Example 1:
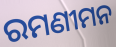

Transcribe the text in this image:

ରମଣୀମନ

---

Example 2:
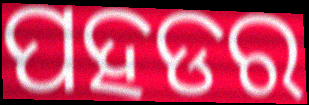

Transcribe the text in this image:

ପହଡର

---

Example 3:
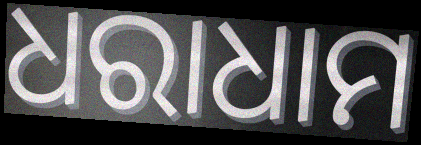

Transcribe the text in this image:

ଧରାଧାମ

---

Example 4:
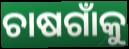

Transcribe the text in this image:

ଚାଷଗାଁକୁ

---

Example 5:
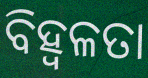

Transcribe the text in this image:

ବିହ୍ଵଳତା